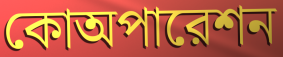
কোঅপারেশন